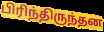
பிரிந்திருந்தன